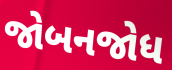
જોબનજોધ